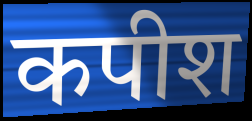
कपीश